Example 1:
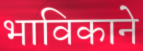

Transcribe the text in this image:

भाविकाने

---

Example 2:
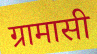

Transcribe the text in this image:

ग्रामासी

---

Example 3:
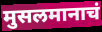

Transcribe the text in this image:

मुसलमानाचं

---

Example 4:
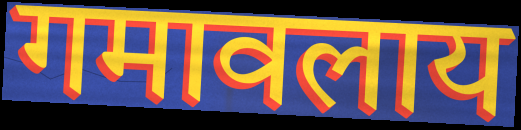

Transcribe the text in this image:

गमावलाय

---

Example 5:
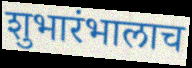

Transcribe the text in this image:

शुभारंभालाच